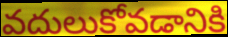
వదులుకోవడానికి